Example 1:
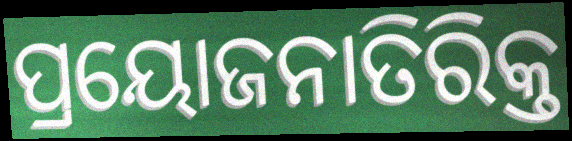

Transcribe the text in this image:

ପ୍ରୟୋଜନାତିରିକ୍ତ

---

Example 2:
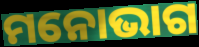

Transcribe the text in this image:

ମନୋଭାଗ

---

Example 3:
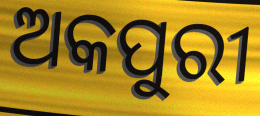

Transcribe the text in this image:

ଅକପୁରୀ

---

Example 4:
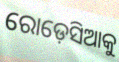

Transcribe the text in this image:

ରୋଡ଼େସିଆକୁ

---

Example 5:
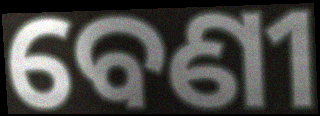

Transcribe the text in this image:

ବେଣୀ